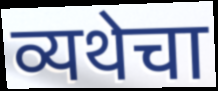
व्यथेचा